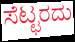
ಸೆಟ್ಟರದು